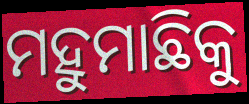
ମହୁମାଛିକୁ